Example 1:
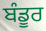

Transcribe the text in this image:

ਬੰਡੂਰ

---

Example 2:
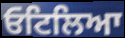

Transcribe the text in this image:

ਓਟਿਲਿਆ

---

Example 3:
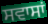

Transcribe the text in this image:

ਸਵਾਸਾਂ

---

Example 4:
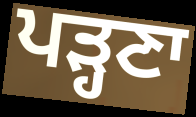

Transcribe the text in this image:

ਪੜ੍ਹਣਾ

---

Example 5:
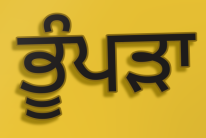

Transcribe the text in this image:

ਭੂੰਪੜਾ